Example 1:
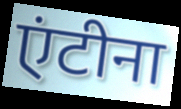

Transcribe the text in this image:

एंटीना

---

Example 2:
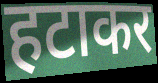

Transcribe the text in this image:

हटाकर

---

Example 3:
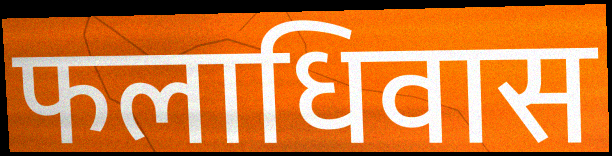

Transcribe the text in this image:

फलाधिवास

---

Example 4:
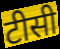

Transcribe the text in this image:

टीसी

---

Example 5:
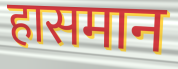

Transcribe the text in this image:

हासमान